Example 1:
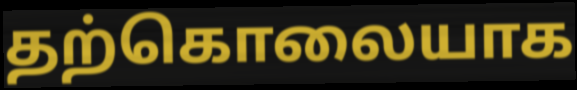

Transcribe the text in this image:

தற்கொலையாக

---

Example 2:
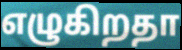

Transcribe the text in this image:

எழுகிறதா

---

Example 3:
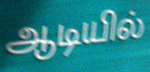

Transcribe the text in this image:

ஆடியில்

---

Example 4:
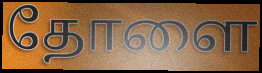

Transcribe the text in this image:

தோளை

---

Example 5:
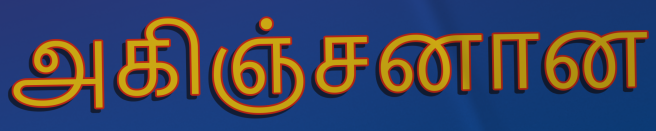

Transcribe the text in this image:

அகிஞ்சனான